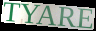
TYARE